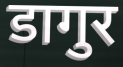
डागुर